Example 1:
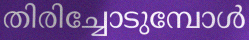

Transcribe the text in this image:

തിരിച്ചോടുമ്പോൾ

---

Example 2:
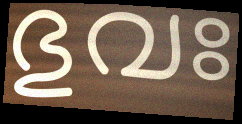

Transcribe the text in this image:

ഭുവഃ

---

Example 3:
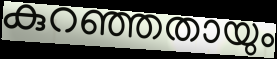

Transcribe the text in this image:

കുറഞ്ഞതായും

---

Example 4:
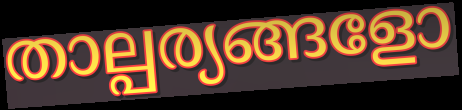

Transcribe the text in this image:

താല്പര്യങ്ങളോ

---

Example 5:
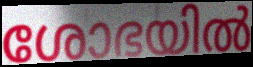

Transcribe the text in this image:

ശോഭയിൽ